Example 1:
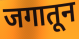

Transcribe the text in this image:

जगातून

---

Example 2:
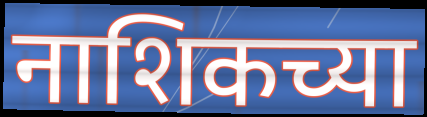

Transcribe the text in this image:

नाशिकच्या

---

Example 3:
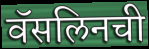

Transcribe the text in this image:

वॅसलिनची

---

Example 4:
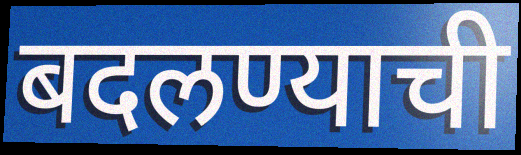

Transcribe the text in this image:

बदलण्याची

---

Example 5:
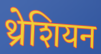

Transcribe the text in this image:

थ्रेशियन